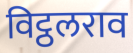
विट्ठलराव